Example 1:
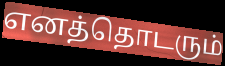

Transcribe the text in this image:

எனத்தொடரும்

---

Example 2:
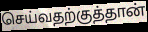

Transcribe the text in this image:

செய்வதற்குத்தான்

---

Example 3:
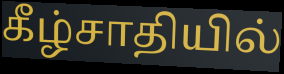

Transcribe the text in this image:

கீழ்சாதியில்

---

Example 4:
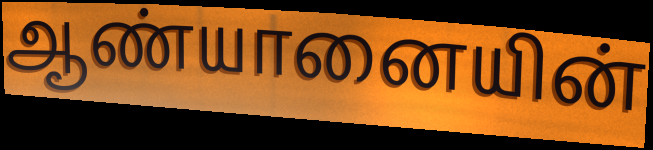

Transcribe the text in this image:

ஆண்யானையின்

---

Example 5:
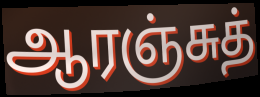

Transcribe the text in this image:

ஆரஞ்சுத்